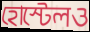
হোস্টেলও